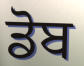
ਡੋਬ